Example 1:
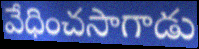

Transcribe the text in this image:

వేధించసాగాడు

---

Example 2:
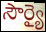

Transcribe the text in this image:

సౌర్యై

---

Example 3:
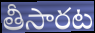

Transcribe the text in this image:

తీసారట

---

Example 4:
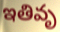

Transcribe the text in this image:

ఇతివృ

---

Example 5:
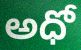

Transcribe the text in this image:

అధో